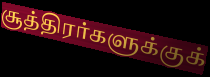
சூத்திரர்களுக்குக்